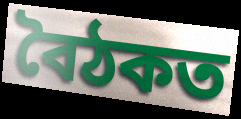
বৈঠকত